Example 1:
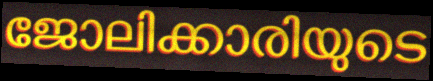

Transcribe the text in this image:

ജോലിക്കാരിയുടെ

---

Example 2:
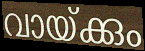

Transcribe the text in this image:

വായ്‌ക്കും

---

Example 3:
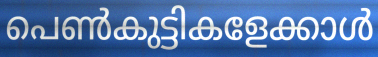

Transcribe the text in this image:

പെൺകുട്ടികളേക്കാൾ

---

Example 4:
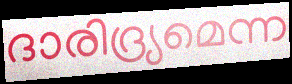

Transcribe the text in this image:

ദാരിദ്ര്യമെന്ന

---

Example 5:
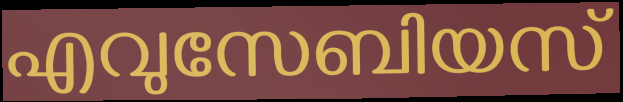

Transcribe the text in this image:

എവുസേബിയസ്